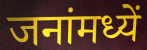
जनांमध्यें